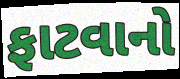
ફાટવાનો